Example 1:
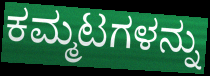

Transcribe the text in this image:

ಕಮ್ಮಟಗಳನ್ನು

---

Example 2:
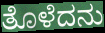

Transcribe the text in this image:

ತೊಳೆದನು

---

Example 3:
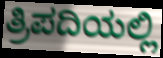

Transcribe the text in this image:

ತ್ರಿಪದಿಯಲ್ಲಿ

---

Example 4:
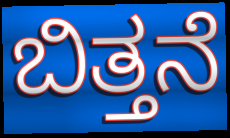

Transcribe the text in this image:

ಬಿತ್ತನೆ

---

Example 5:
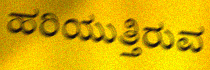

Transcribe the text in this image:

ಹರಿಯುತ್ತಿರುವ